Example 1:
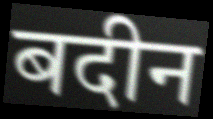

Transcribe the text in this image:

बदीन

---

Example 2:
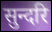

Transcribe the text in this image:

सुन्दरि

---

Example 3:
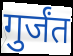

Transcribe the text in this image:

गुर्जंत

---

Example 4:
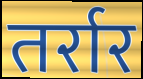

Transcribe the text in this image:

तर्रार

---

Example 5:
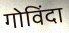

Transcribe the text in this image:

गोविंदा